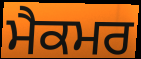
ਮੈਕਮਰ